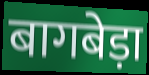
बागबेड़ा